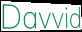
Davvid